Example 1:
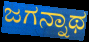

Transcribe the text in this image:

ಜಗನ್ನಾಥ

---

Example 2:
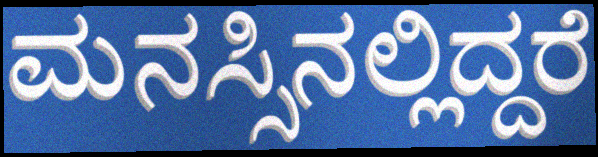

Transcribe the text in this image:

ಮನಸ್ಸಿನಲ್ಲಿದ್ದರೆ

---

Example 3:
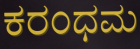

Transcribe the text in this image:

ಕರಂಧಮ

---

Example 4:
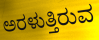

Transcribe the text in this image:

ಅರಳುತ್ತಿರುವ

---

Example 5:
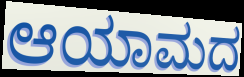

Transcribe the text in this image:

ಆಯಾಮದ